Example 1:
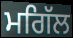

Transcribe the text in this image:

ਮਗਿੱਲ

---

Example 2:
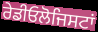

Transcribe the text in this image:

ਰੇਡੀਓਲੋਜਿਸਟਾਂ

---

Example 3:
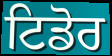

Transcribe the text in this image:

ਟਿਡੋਰ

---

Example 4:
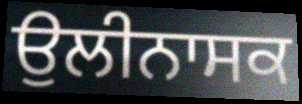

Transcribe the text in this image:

ਉਲੀਨਾਸਕ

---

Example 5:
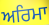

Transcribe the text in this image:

ਅਰਿਮਾ